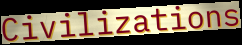
Civilizations